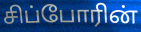
சிப்போரின்